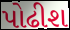
પોઢીશ